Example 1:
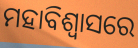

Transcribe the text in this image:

ମହାବିଶ୍ୱାସରେ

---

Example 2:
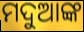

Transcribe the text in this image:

ମଦୁଆଙ୍କ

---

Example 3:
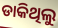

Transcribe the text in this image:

ଡାକିଥିଲୁ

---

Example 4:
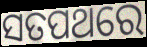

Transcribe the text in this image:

ସତପଥରେ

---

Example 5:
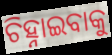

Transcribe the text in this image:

ଚିହ୍ନାଇବାକୁ